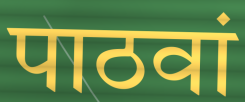
पाठवां